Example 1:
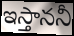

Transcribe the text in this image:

ఇస్తాననీ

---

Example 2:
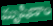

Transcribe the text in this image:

మృషీణాం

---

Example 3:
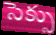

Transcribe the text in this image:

సెక్సు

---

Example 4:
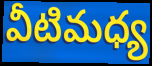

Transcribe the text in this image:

వీటిమధ్య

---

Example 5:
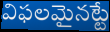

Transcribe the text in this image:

విఫలమైనట్టే